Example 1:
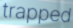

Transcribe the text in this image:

trapped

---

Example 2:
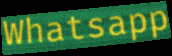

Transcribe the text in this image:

Whatsapp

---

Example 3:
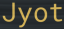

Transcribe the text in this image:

Jyot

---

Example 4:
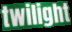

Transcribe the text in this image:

twilight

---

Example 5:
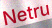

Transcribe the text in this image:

Netru